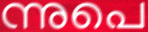
ന്നുപെ